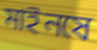
মাইনষে